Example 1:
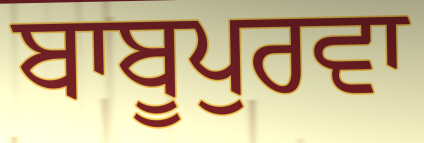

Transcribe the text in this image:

ਬਾਬੂਪੁਰਵਾ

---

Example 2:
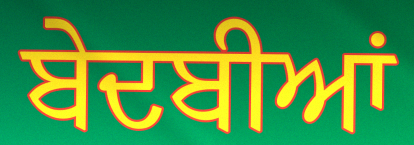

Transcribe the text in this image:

ਬੇਦਬੀਆਂ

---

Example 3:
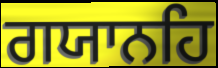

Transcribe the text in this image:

ਗਯਾਨਹਿ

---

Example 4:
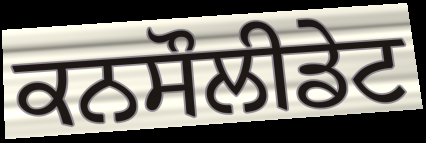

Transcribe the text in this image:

ਕਨਸੌਲੀਡੇਟ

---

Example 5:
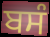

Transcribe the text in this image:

ਬਸੰ